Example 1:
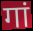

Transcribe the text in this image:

गां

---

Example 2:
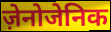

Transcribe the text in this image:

ज़ेनोजेनिक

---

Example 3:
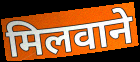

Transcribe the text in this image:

मिलवाने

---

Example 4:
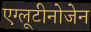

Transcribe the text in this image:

एग्लूटीनोजेन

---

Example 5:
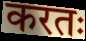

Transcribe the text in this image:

करतः